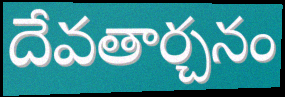
దేవతార్చనం